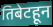
तिबेटहून